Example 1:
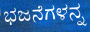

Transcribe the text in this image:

ಭಜನೆಗಳನ್ನ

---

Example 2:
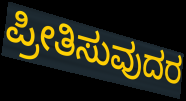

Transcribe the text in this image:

ಪ್ರೀತಿಸುವುದರ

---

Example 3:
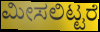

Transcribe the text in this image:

ಮೀಸಲಿಟ್ಟರೆ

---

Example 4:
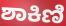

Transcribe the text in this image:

ಶಾಕಿಣಿ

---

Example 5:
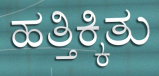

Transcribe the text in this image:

ಹತ್ತಿಕ್ಕಿತು